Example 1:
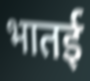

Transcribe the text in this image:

भातई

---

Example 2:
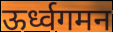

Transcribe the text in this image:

ऊर्ध्वगमन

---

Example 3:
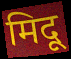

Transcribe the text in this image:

मिदू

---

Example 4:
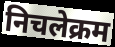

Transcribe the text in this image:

निचलेक्रम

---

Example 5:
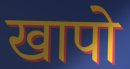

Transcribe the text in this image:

खापो